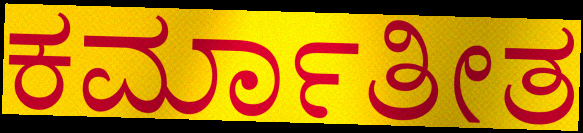
ಕರ್ಮಾತೀತ